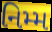
નિમ્મ